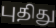
புதிது